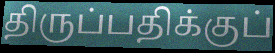
திருப்பதிக்குப்